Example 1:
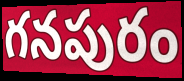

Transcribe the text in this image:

గనపురం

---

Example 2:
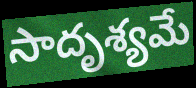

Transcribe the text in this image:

సాదృశ్యమే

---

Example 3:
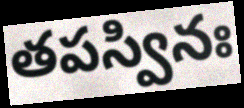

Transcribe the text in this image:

తపస్వినః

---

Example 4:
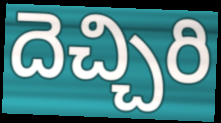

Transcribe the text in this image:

దెచ్చిరి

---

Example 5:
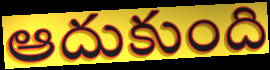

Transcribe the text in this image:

ఆదుకుంది